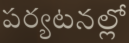
పర్యటనల్లో